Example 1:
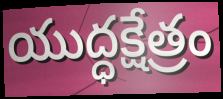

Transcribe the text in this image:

యుద్ధక్షేత్రం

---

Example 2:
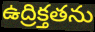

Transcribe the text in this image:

ఉద్రిక్తతను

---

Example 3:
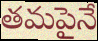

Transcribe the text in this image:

తమపైనే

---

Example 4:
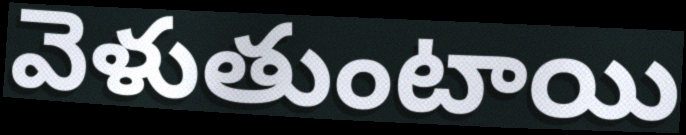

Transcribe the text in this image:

వెళుతుంటాయి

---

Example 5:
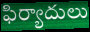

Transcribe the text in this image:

ఫిర్యాదులు